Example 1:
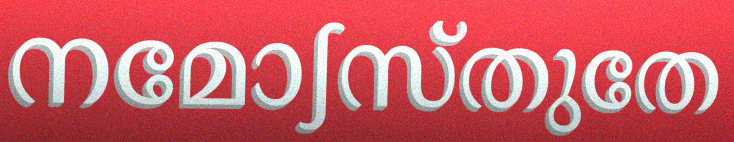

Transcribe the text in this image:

നമോഽസ്തുതേ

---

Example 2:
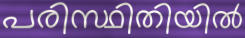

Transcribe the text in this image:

പരിസ്ഥിതിയിൽ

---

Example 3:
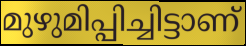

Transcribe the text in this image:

മുഴുമിപ്പിച്ചിട്ടാണ്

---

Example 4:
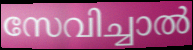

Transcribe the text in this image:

സേവിച്ചാൽ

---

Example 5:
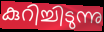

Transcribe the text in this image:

കുറിച്ചിടുന്നു